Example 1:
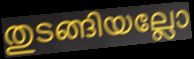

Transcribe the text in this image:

തുടങ്ങിയല്ലോ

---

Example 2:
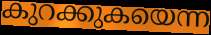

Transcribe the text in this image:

കുറക്കുകയെന്ന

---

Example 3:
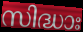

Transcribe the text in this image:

സിദ്ധാഃ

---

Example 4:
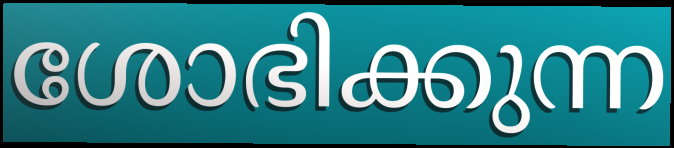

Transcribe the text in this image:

ശോഭിക്കുന്ന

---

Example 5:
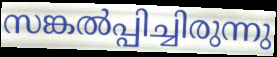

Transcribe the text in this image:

സങ്കൽപ്പിച്ചിരുന്നു